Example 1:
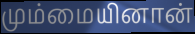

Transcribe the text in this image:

மும்மையினான்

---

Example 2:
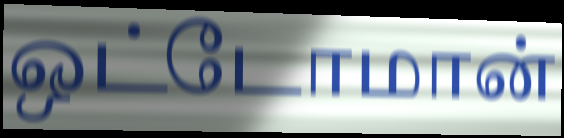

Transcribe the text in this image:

ஒட்டோமான்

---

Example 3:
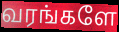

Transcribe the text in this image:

வரங்களே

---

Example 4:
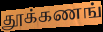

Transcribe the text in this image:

தூக்கணங்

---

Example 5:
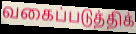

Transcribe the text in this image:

வகைப்படுத்திக்